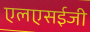
एलएसईजी